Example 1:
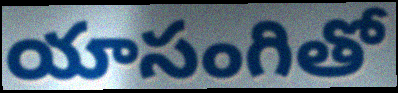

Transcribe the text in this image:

యాసంగితో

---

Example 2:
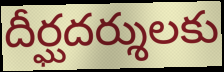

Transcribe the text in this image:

దీర్ఘదర్శులకు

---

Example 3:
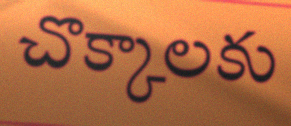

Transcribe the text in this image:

చొక్కాలకు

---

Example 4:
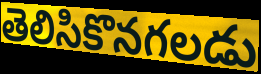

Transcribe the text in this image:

తెలిసికొనగలడు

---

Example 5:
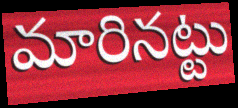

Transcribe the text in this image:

మారినట్టు